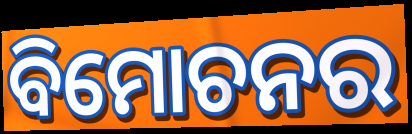
ବିମୋଚନର